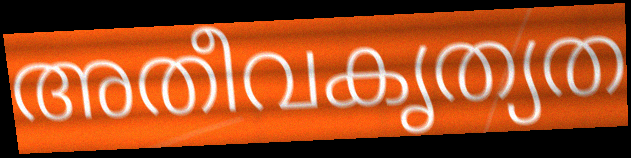
അതീവകൃത്യത